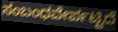
ಸಂಬಂಧವೇರ್ಪಟ್ಟಿದೆ